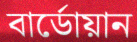
বার্ডোয়ান